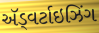
ઍડ્વર્ટાઇઝિંગ